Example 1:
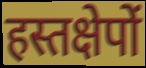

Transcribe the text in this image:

हस्तक्षेपों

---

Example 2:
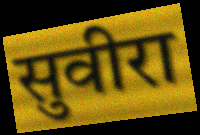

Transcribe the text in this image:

सुवीरा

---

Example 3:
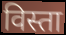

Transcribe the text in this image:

विस्ता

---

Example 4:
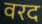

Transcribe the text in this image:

वरद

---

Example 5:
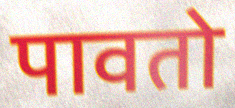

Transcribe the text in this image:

पावतो